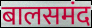
बालसमंद